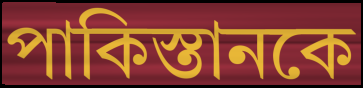
পাকিস্তানকে